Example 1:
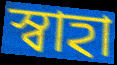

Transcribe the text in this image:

স্বাহা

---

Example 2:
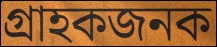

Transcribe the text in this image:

গ্ৰাহকজনক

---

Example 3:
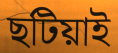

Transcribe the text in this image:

ছটিয়াই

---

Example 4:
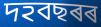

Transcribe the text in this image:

দহবছৰৰ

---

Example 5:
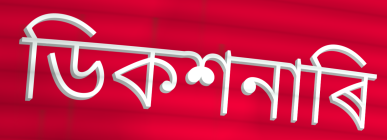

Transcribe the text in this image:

ডিকশনাৰি